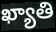
ఖ్యాతి